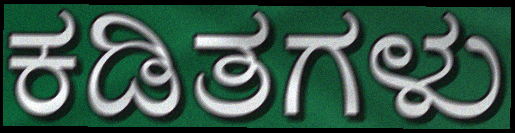
ಕಡಿತಗಳು